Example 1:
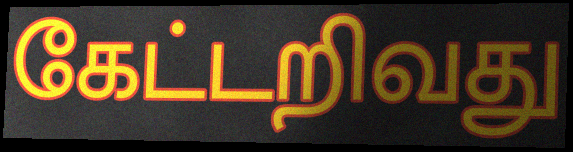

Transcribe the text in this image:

கேட்டறிவது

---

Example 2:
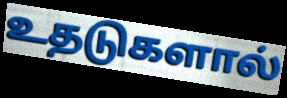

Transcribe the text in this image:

உதடுகளால்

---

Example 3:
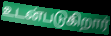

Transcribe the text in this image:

உடன்படுகிறார்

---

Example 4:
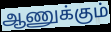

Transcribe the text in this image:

ஆணுக்கும்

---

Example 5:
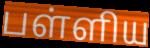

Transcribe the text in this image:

பள்ளிய